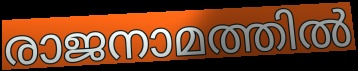
രാജനാമത്തിൽ